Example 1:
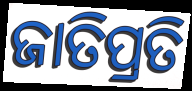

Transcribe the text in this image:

ଜାତିପ୍ରତି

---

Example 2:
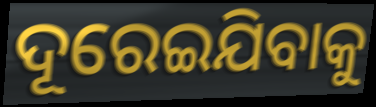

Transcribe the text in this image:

ଦୂରେଇଯିବାକୁ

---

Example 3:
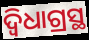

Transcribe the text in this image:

ଦ୍ବିଧାଗ୍ରସ୍ଥ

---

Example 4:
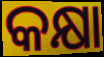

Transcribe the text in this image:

କକ୍ଷା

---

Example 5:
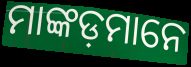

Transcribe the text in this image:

ମାଙ୍କଡ଼ମାନେ